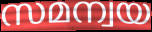
സമന്വയ